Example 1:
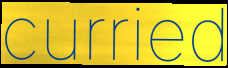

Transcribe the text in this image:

curried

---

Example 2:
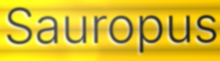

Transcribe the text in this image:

Sauropus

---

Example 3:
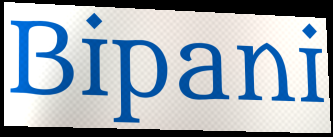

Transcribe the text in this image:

Bipani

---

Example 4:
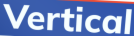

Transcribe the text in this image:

Vertical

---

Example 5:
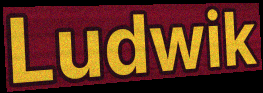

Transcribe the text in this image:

Ludwik